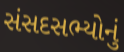
સંસદસભ્યોનું